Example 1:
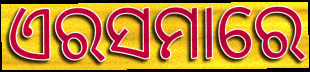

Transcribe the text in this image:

ଏରସମାରେ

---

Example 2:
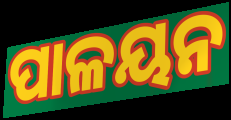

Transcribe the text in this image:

ପାଳୟନ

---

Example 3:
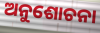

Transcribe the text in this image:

ଅନୁଶୋଚନା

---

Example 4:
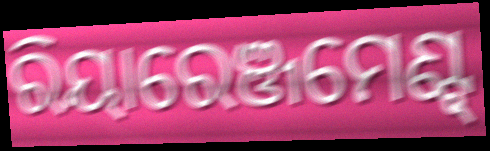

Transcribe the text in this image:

ରିୟାରେଞ୍ଜମେଣ୍ଟ୍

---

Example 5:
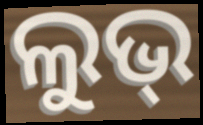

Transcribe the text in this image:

ଲୁଭ୍